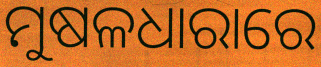
ମୁଷଳଧାରାରେ